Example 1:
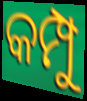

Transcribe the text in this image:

କମ୍ପୁ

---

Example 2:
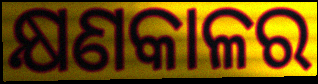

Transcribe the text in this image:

କ୍ଷଣକାଳର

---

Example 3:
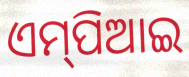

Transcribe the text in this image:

ଏମ୍‌ପିଆଇ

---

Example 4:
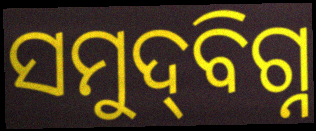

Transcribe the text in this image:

ସମୁଦ୍‌ବିଗ୍ନ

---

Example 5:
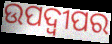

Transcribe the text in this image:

ଉପଦ୍ୱୀପର